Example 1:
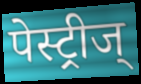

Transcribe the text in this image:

पेस्ट्रीज्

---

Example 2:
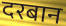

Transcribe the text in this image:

दरबान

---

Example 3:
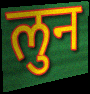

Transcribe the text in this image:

लुन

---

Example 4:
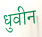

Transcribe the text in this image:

धुवीन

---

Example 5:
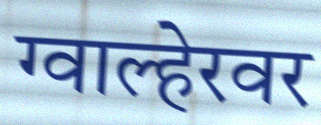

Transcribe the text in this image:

ग्वाल्हेरवर